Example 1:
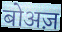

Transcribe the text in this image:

बोअज़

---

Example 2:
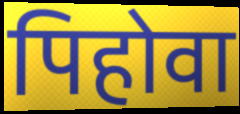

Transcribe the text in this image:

पिहोवा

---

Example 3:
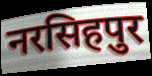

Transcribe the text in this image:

नरसिहपुर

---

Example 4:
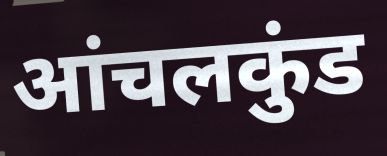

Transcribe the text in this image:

आंचलकुंड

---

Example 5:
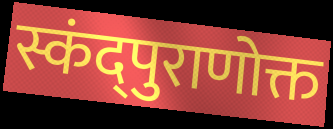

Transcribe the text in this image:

स्कंद्पुराणोक्त